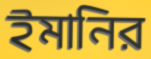
ইমানির